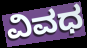
ವಿವಧ